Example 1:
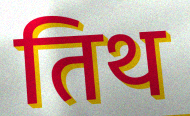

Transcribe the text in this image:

तिथ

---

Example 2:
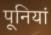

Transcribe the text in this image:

पूनियां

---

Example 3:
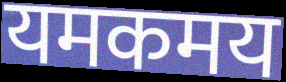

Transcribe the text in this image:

यमकमय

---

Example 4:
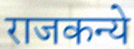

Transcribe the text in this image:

राजकन्ये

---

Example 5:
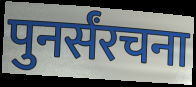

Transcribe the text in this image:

पुनर्संरचना